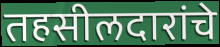
तहसीलदारांचे